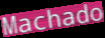
Machado